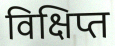
विक्षिप्त